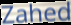
Zahed